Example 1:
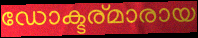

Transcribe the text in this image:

ഡോക്ടര്മാരായ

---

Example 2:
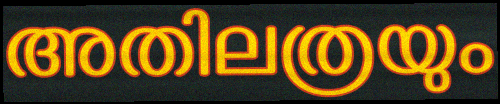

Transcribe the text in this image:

അതിലത്രയും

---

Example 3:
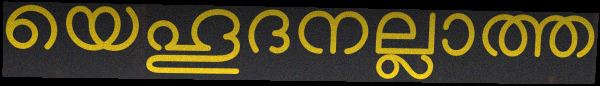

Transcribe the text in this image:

യെഹൂദനല്ലാത്ത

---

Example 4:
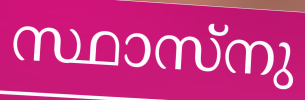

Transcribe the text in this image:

സ്ഥാസ്നു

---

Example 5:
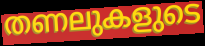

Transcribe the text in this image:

തണലുകളുടെ